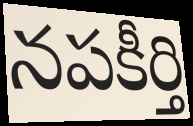
నపకీర్తి